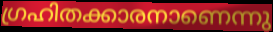
ഗ്രഹിതക്കാരനാണെന്നു